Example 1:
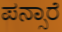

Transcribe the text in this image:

ಪನ್ಸಾರೆ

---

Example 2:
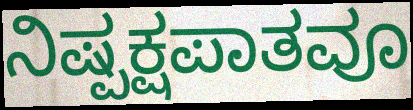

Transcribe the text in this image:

ನಿಷ್ಪಕ್ಷಪಾತವೂ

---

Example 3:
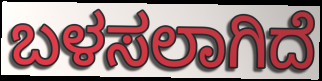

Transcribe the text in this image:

ಬಳಸಲಾಗಿದೆ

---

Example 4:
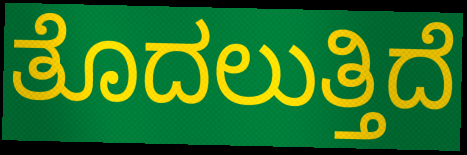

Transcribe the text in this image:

ತೊದಲುತ್ತಿದೆ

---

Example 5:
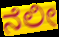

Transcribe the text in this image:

ನೆಲೀ